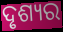
ଦୃଶ୍ୟର